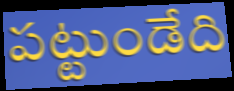
పట్టుండేది